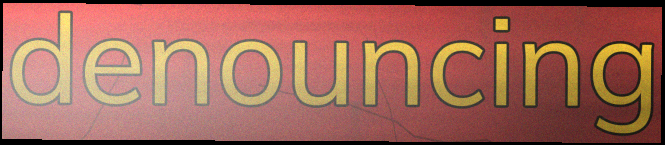
denouncing